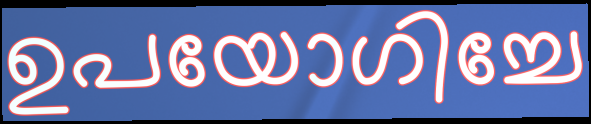
ഉപയോഗിച്ചേ